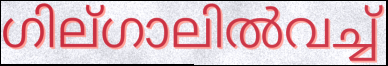
ഗില്ഗാലിൽവച്ച്